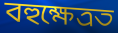
বহুক্ষেত্ৰত